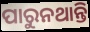
ପାରୁନଥାନ୍ତି